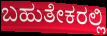
ಬಹುತೇಕರಲ್ಲಿ